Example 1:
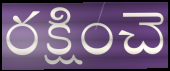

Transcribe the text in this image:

రక్షించె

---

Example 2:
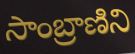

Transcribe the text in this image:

సాంబ్రాణిని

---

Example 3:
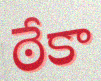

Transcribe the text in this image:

ఠేకా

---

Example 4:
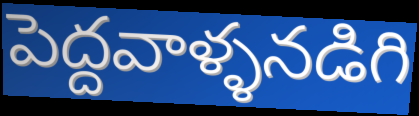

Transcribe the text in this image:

పెద్దవాళ్ళనడిగి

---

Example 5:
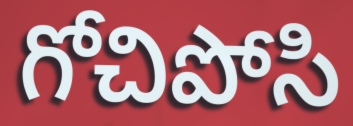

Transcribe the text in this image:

గోచిపోసి